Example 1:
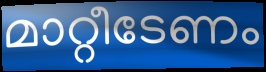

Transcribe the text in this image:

മാറ്റീടേണം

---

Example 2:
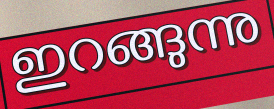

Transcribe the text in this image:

ഇറങ്ങുന്നു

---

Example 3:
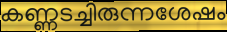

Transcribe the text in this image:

കണ്ണടച്ചിരുന്നശേഷം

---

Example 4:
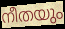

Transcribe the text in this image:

നീതയും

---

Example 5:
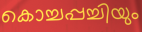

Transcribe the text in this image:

കൊച്ചപ്പച്ചിയും